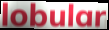
lobular